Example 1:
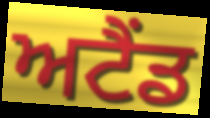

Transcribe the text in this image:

ਅਟੈਂਡ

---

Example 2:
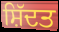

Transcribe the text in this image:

ਸ਼ਿੱਦਤ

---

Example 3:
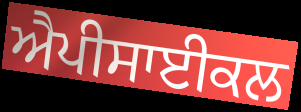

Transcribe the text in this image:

ਐਪੀਸਾਈਕਲ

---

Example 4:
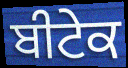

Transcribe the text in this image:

ਬੀਟੇਕ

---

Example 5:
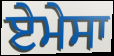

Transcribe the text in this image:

ਏਮੇਸਾ